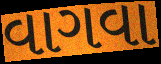
વાગવા